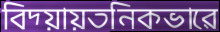
বিদ্য়ায়তনিকভাৱে